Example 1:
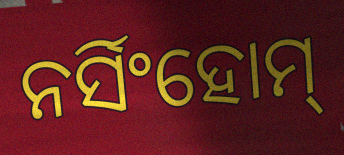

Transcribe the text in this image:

ନର୍ସିଂହୋମ୍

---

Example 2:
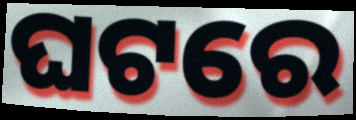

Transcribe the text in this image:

ଘଟରେ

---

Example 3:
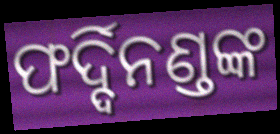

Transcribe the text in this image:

ଫର୍ଦ୍ଦିନଣ୍ଡଙ୍କ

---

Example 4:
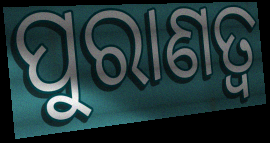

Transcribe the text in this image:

ପୁରାଣତ୍ୱ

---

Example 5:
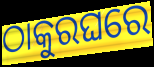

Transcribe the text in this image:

ଠାକୁରଘରେ